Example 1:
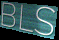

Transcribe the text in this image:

BLS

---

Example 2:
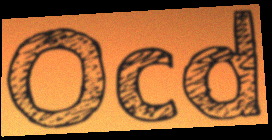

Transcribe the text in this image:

Ocd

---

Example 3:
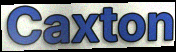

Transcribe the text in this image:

Caxton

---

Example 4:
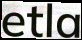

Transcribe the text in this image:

etla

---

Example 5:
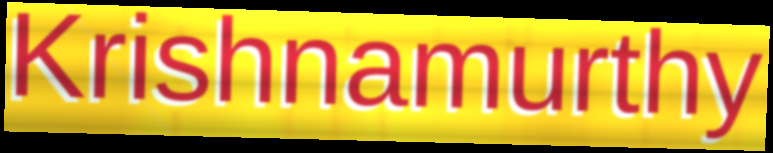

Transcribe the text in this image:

Krishnamurthy